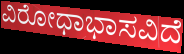
ವಿರೋಧಾಭಾಸವಿದೆ